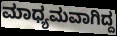
ಮಾಧ್ಯಮವಾಗಿದ್ದ